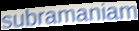
subramaniam